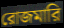
রোজমারি